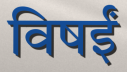
विषईं